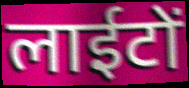
लाईटों